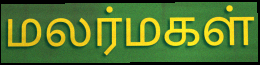
மலர்மகள்